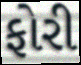
ફોરી